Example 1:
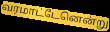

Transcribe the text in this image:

வரமாட்டேனென்று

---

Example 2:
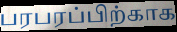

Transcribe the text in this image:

பரபரப்பிற்காக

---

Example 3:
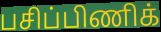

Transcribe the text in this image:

பசிப்பிணிக்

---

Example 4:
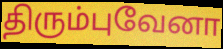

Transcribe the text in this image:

திரும்புவேனா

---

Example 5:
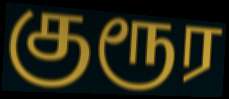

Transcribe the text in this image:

குரூர